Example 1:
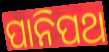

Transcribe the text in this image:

ପାନିପଥ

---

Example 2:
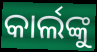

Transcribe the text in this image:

କାର୍ଲଙ୍କୁ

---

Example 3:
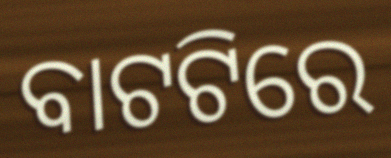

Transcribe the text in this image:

ବାଟଟିରେ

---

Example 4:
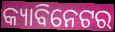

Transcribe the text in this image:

କ୍ୟାବିନେଟର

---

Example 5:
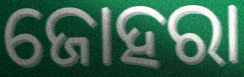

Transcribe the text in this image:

ଜୋହରା